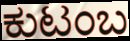
ಕುಟಂಬ